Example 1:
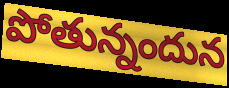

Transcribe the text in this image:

పోతున్నందున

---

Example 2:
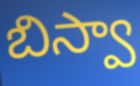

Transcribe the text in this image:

బిస్వా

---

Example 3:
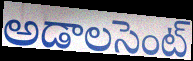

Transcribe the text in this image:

అడాలసెంట్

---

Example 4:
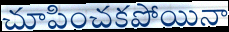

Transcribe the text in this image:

చూపించకపోయినా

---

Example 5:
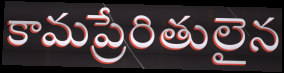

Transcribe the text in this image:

కామప్రేరితులైన